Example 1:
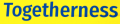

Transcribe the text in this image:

Togetherness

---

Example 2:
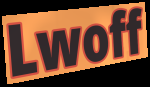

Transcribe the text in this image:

Lwoff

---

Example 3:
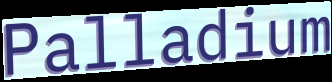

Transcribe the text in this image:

Palladium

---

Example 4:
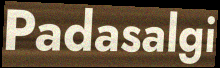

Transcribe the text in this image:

Padasalgi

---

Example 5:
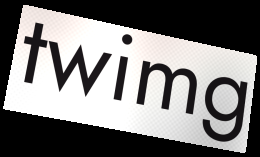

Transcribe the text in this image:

twimg